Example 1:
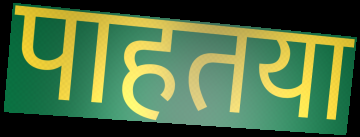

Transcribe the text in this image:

पाहतया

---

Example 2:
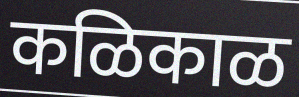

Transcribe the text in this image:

कळिकाळ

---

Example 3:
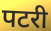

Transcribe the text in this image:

पटरी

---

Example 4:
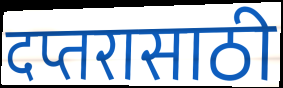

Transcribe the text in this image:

दप्तरासाठी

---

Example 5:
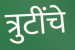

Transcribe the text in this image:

त्रुटींचे